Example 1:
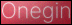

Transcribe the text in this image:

Onegin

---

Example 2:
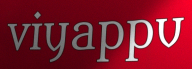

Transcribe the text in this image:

viyappu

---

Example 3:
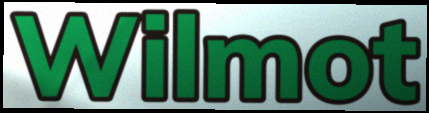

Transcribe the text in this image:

Wilmot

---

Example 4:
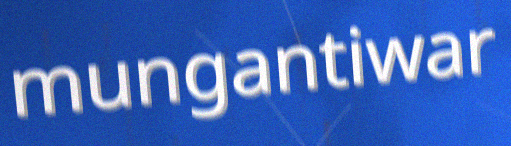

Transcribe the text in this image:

mungantiwar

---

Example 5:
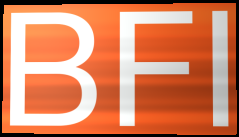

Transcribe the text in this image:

BFI